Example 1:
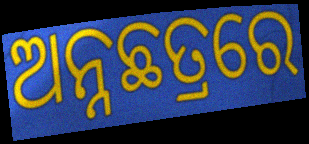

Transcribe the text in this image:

ଅନ୍ନଛତ୍ରରେ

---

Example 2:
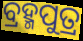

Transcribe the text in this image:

ବ୍ରହ୍ମପୁତ୍ର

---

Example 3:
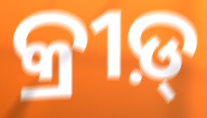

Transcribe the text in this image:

କ୍ରୀଡ଼୍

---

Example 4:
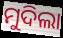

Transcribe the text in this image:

ମୁଦିଲା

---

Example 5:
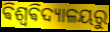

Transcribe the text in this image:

ଵିଶ୍ୱଵିଦ୍ୟାଳୟରୁ